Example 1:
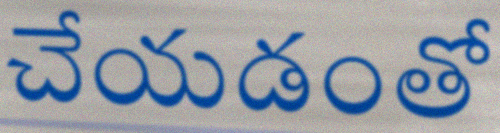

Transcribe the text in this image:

చేయడంతో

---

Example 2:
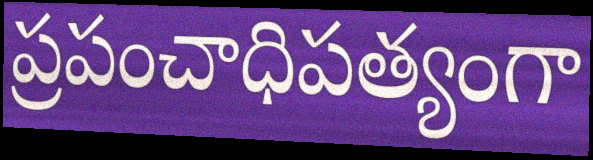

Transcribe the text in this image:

ప్రపంచాధిపత్యంగా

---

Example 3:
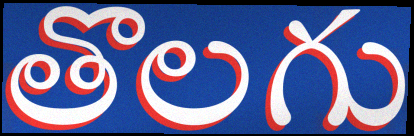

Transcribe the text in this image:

తొలగు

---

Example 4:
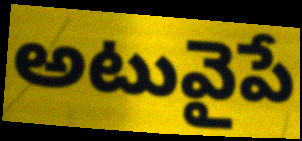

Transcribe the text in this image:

అటువైపే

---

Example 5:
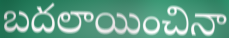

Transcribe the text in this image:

బదలాయించినా